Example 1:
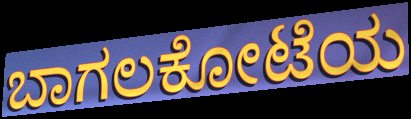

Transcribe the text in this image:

ಬಾಗಲಕೋಟೆಯ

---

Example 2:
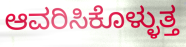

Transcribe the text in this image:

ಆವರಿಸಿಕೊಳ್ಳುತ್ತ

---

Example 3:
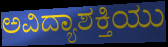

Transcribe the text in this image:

ಅವಿದ್ಯಾಶಕ್ತಿಯು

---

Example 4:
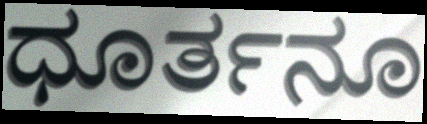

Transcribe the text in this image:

ಧೂರ್ತನೂ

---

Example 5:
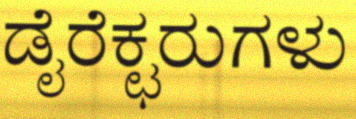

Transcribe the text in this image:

ಡೈರೆಕ್ಟರುಗಳು